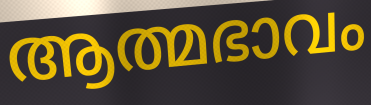
ആത്മഭാവം